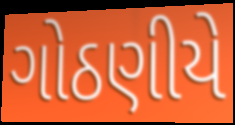
ગોઠણીયે